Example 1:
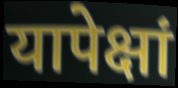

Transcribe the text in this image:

यापेक्षां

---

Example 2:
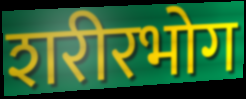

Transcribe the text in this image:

शरीरभोग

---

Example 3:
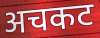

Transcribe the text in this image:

अचकट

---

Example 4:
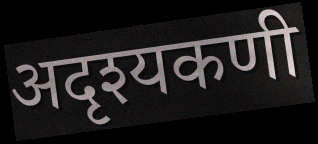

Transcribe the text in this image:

अदृश्यकणी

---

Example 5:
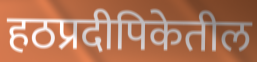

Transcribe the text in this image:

हठप्रदीपिकेतील